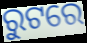
ରୁଟରେ